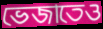
ভেজাতেও